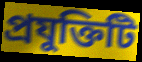
প্রযুক্তিটি